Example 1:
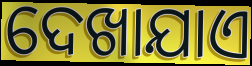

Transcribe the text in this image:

ଦେଖାଯାଏ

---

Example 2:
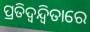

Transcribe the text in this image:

ପ୍ରତିଦ୍ୱନ୍ଦ୍ବିତାରେ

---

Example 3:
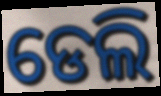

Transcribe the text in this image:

ଡେଲି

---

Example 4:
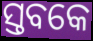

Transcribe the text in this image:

ସ୍ତବକେ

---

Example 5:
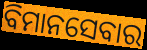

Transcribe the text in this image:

ବିମାନସେବାର